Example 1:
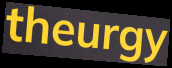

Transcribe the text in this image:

theurgy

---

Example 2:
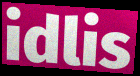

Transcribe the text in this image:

idlis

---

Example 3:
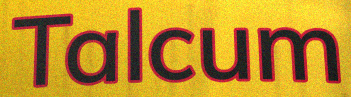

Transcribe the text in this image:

Talcum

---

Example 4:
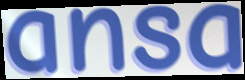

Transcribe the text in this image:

ansa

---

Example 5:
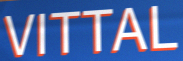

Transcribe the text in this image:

VITTAL